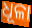
ଧୂଳା